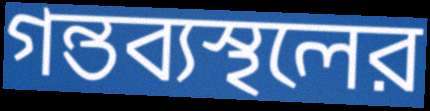
গন্তব্যস্থলের